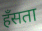
हॅंसता